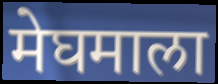
मेघमाला